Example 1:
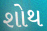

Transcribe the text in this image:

શોથ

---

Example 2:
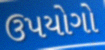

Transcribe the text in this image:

ઉપયોગો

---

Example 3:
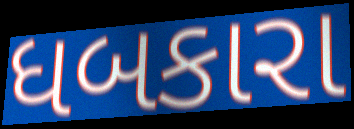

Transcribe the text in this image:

ધબકારા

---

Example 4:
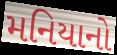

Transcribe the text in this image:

મનિયાનો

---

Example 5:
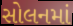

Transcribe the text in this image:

સોલનમાં